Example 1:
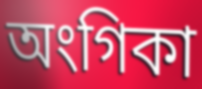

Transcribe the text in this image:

অংগিকা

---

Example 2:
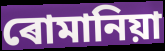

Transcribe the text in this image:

ৰোমানিয়া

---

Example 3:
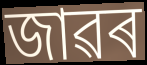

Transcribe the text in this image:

জাৱৰ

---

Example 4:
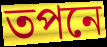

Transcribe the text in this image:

তপনে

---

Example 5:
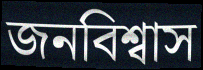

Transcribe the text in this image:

জনবিশ্বাস